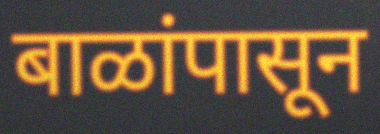
बाळांपासून